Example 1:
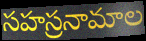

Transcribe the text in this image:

సహస్రనామాల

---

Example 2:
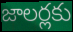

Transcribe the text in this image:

జాలర్లకు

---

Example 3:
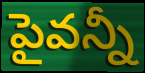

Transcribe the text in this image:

పైవన్నీ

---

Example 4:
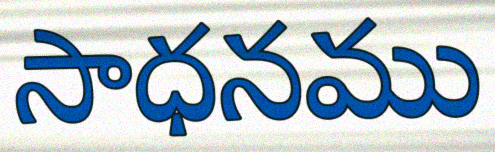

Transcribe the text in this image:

సాధనము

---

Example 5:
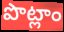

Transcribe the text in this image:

పొట్లాం